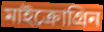
মাইক্রোগ্রিন